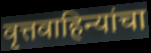
वृत्तवाहिन्यांचा